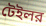
টেইলর